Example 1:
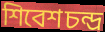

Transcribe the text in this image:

শিবেশচন্দ্র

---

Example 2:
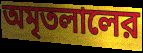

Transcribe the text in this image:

অমৃতলালের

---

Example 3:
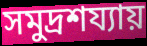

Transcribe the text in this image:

সমুদ্রশয্যায়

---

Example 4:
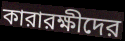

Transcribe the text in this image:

কারারক্ষীদের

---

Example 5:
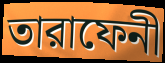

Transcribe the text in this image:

তারাফেনী